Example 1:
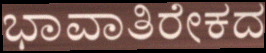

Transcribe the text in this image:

ಭಾವಾತಿರೇಕದ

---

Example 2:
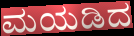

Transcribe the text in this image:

ಮಯಡಿದ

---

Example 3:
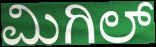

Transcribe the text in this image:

ಮಿಗಿಲ್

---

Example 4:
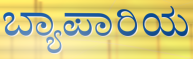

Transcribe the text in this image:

ಬ್ಯಾಪಾರಿಯ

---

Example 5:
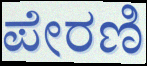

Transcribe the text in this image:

ಪೇರಣಿ